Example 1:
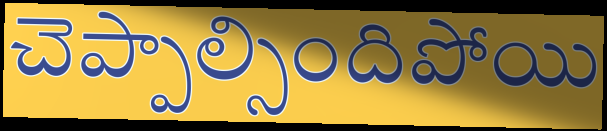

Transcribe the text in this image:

చెప్పాల్సిందిపోయి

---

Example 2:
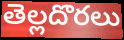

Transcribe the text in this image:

తెల్లదొరలు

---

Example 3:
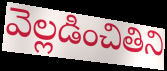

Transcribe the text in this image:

వెల్లడించితిని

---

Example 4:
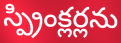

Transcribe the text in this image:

స్ప్రింక్లర్లను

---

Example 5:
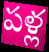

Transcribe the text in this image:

పళ్ల